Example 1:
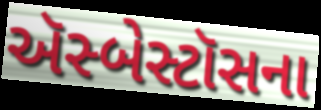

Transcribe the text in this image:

ઍસ્બેસ્ટૉસના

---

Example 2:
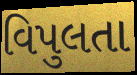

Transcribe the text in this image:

વિપુલતા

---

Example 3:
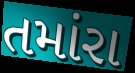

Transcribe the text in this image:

તમાંરા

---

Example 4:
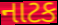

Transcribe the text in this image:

નાટક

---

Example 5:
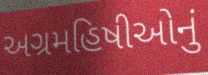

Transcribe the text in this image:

અગ્રમહિષીઓનું